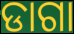
ଡାଗା